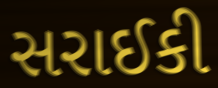
સરાઈકી